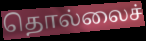
தொல்லைச்